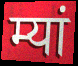
म्यां